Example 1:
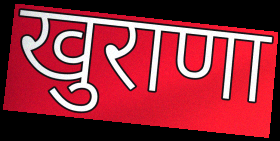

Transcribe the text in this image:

खुराणा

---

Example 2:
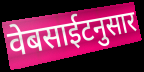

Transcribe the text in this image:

वेबसाईटनुसार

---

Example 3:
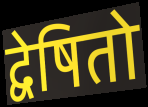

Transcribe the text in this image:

द्वेषितो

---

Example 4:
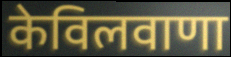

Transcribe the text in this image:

केविलवाणा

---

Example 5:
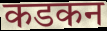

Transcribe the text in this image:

कडकन